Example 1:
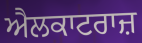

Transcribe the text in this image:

ਐਲਕਾਟਰਾਜ਼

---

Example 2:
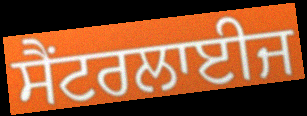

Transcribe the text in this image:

ਸੈਂਟਰਲਾਈਜ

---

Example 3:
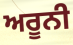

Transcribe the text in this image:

ਅਰੂਨੀ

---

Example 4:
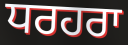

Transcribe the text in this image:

ਧਰਹਰਾ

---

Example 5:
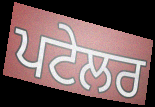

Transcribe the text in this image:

ਪਟੇਲਰ